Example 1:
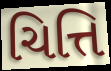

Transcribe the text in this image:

ચિત્તિ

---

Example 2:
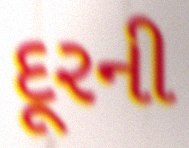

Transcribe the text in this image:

દૂરની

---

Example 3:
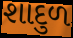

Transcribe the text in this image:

શાદુળ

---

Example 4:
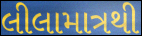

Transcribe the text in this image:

લીલામાત્રથી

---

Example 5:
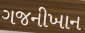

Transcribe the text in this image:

ગજનીખાન